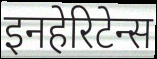
इनहेरिटेन्स